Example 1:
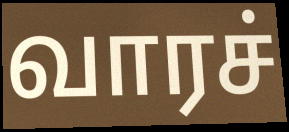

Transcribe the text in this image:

வாரச்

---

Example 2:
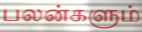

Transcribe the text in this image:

பலன்களும்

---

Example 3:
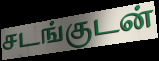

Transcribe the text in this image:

சடங்குடன்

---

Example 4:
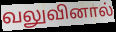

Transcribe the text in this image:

வலுவினால்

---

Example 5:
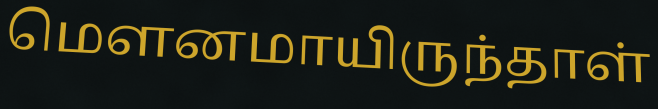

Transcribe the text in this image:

மௌனமாயிருந்தாள்